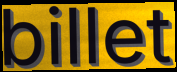
billet